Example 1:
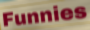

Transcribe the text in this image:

Funnies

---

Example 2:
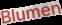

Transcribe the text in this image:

Blumen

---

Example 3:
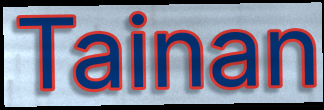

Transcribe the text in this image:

Tainan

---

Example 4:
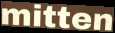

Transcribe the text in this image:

mitten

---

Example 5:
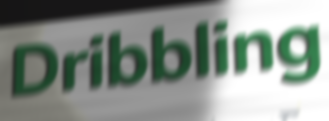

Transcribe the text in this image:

Dribbling